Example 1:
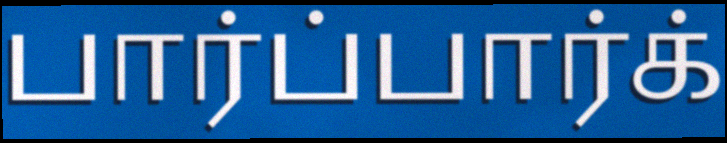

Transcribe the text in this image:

பார்ப்பார்க்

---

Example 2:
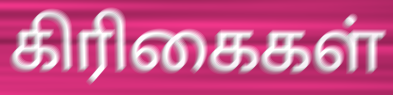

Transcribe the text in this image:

கிரிகைகள்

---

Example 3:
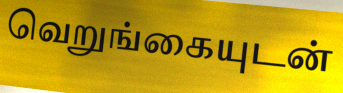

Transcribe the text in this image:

வெறுங்கையுடன்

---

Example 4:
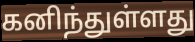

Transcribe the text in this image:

கனிந்துள்ளது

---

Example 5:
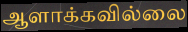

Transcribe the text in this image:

ஆளாக்கவில்லை